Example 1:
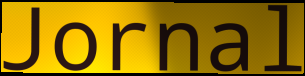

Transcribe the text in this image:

Jornal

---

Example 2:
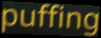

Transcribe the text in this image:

puffing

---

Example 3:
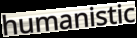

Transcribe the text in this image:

humanistic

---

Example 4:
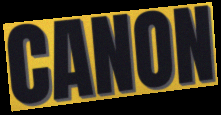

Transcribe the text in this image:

CANON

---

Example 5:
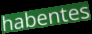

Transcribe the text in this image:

habentes